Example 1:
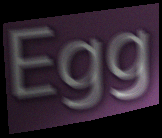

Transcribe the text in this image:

Egg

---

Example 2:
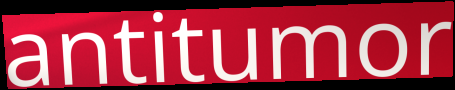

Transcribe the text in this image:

antitumor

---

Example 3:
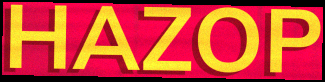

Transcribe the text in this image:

HAZOP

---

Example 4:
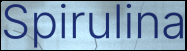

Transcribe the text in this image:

Spirulina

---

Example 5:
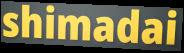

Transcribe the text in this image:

shimadai